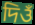
দিওঁ